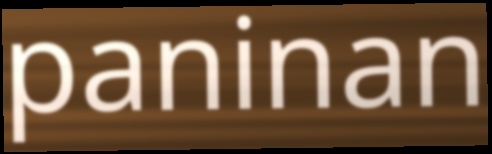
paninan